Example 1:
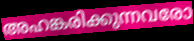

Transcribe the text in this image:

അഹങ്കരിക്കുന്നവരോ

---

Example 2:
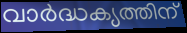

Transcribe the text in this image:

വാർദ്ധക്യത്തിന്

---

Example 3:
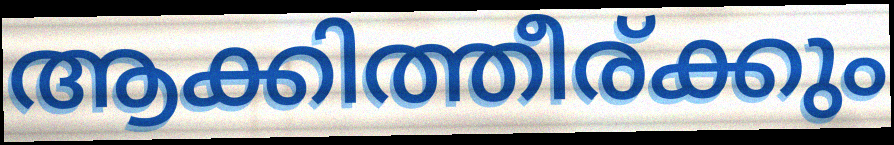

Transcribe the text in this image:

ആക്കിത്തീര്ക്കും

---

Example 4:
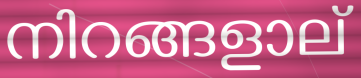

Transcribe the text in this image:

നിറങ്ങളാല്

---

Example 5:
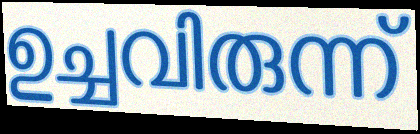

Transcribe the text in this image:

ഉച്ചവിരുന്ന്